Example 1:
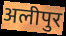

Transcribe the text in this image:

अलीपुर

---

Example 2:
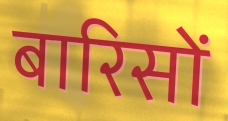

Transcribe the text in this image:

बारिसों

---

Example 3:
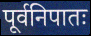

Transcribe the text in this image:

पूर्वनिपातः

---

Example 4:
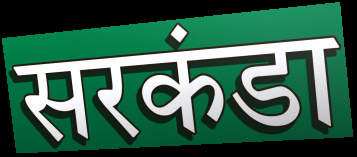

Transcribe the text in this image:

सरकंडा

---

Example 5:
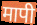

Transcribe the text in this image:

मापी